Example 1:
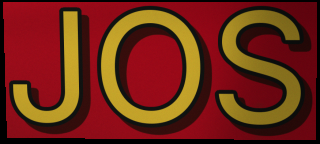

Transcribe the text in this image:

JOS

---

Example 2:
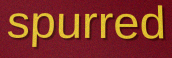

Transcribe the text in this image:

spurred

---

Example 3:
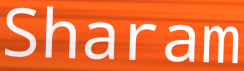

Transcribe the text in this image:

Sharam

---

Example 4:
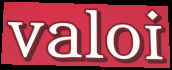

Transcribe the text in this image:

valoi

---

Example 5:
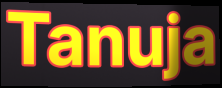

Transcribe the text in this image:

Tanuja